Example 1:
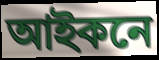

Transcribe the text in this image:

আইকনে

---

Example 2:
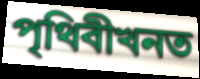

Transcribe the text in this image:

পৃথিবীখনত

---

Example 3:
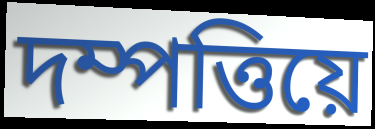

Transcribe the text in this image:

দম্পত্তিয়ে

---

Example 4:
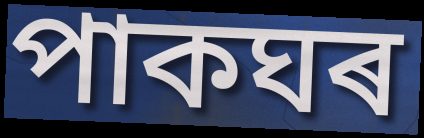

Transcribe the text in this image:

পাকঘৰ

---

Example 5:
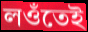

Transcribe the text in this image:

লওঁতেই